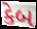
કેબ